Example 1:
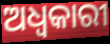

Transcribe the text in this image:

ଅଧ୍ବକାରୀ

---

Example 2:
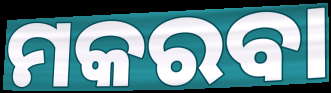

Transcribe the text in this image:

ମକରବା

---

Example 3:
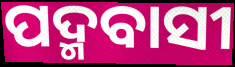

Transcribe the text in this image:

ପଦ୍ମବାସୀ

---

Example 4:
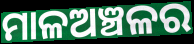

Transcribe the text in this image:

ମାଳଅଞ୍ଚଳର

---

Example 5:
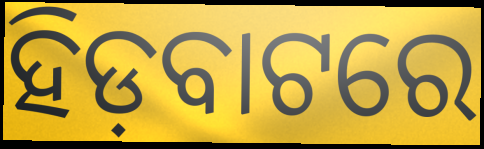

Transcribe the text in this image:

ହିଡ଼ବାଟରେ